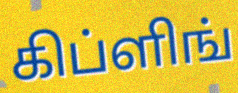
கிப்ளிங்